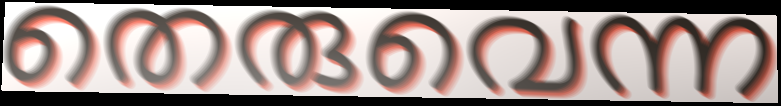
തെരുവെന്ന